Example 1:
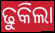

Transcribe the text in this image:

ଢୁକିଲା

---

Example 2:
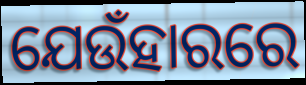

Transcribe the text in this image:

ଯେଉଁହାରରେ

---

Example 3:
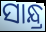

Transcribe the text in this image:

ସାନ୍ଧ୍ର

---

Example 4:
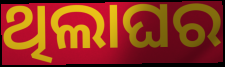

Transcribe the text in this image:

ଥିଲାଘର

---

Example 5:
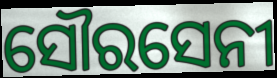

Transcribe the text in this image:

ସୌରସେନୀ